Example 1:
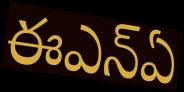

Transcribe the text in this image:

ఈఎన్ఏ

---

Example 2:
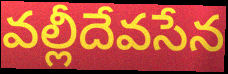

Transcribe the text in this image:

వల్లీదేవసేన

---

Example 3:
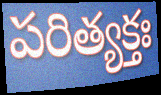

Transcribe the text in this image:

పరిత్యక్తః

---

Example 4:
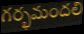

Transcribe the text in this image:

గర్భమందలి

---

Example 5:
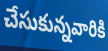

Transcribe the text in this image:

చేసుకున్నవారికి